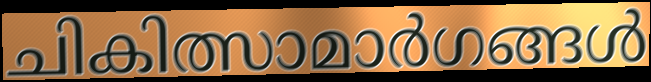
ചികിത്സാമാർഗങ്ങൾ